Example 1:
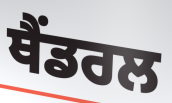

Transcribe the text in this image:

ਥੈਂਡਰਲ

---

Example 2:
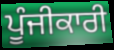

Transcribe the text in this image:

ਪੂੰਜੀਕਾਰੀ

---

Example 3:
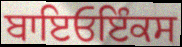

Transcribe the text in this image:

ਬਾਇਓਇੰਕਸ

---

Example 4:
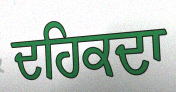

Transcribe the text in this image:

ਦਹਿਕਦਾ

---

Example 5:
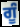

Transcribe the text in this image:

ਗੂੰ